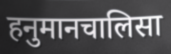
हनुमानचालिसा